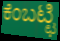
ಕೆಂಬಟ್ಟಿ